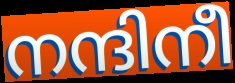
നന്ദിനീ